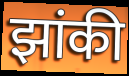
झांकी